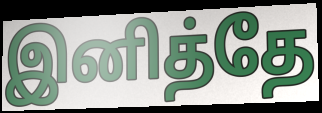
இனித்தே